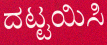
ದಟ್ಟಯಿಸಿ